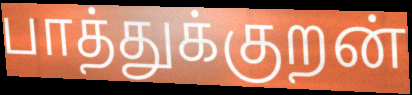
பாத்துக்குறன்